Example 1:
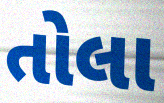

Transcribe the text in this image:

તોલા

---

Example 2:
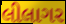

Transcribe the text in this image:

લીલાગર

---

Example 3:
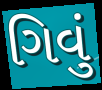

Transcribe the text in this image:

ગિવું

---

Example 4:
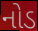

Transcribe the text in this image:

નોડ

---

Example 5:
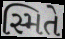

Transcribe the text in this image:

સ્મિતે